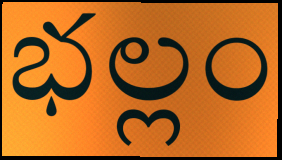
భల్లం